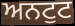
ਅਨਟੁਟ